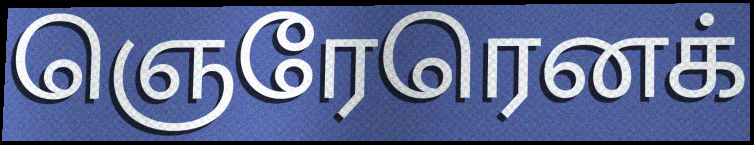
ஞெரேரெனக்